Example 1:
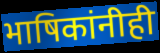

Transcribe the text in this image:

भाषिकांनीही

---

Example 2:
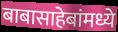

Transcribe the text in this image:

बाबासाहेबांमध्ये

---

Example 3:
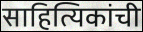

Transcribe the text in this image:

साहित्यिकांची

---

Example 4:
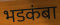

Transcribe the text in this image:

भडकंबा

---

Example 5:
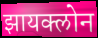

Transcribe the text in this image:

झायक्लोन